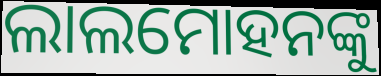
ଲାଲମୋହନଙ୍କୁ